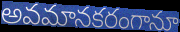
అవమానకరంగానూ